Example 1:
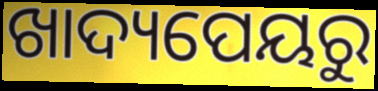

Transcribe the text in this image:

ଖାଦ୍ୟପେୟରୁ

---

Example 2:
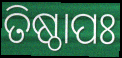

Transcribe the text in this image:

ତିଷ୍ଠାପଃ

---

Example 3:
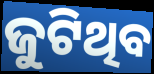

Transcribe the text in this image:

ଜୁଟିଥିବ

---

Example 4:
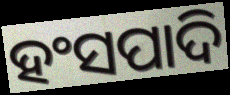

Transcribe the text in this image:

ହଂସପାଦି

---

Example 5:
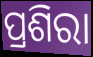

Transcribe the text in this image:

ପ୍ରଶିରା